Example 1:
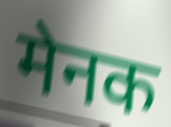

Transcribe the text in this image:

मेनक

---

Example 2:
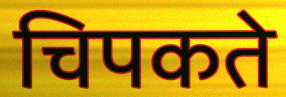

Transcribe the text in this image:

चिपकते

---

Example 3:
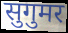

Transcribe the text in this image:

सुगुमर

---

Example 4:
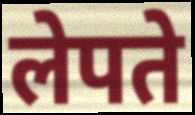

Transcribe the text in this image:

लेपते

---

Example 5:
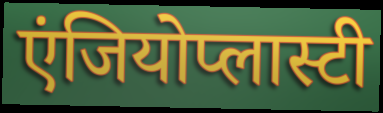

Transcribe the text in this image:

एंजियोप्लास्टी